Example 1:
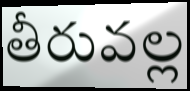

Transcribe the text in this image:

తీరువల్ల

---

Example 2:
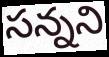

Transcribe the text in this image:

సన్నని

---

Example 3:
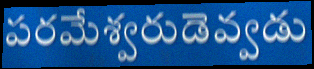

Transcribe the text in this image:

పరమేశ్వరుడెవ్వడు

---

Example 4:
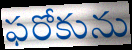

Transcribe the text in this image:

ఫరోకును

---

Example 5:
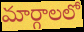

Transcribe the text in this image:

మార్గాలలో